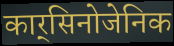
कार्सिनोजेनिक